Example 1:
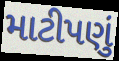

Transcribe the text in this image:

માટીપણું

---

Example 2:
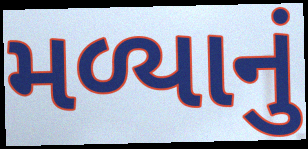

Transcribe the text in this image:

મળ્યાનું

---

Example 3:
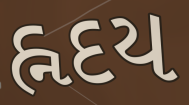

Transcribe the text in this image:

હ્નદય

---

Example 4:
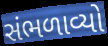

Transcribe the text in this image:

સંભળાવ્યો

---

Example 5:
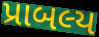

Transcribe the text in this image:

પ્રાબલ્ય